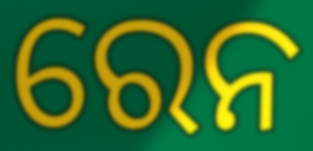
ରେନ